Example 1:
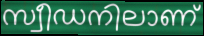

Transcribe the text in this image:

സ്വീഡനിലാണ്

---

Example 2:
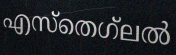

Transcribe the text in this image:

എസ്തെഗ്‌ലൽ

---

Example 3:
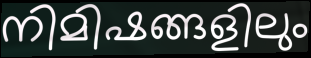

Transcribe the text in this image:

നിമിഷങ്ങളിലും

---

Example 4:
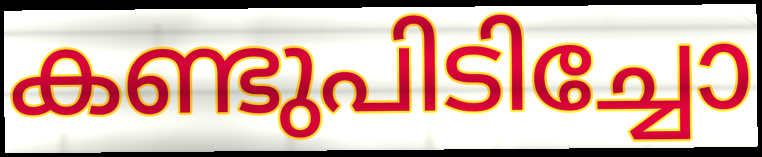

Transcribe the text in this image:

കണ്ടുപിടിച്ചോ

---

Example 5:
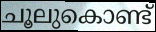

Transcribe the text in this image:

ചൂലുകൊണ്ട്